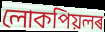
লোকপিয়লৰ